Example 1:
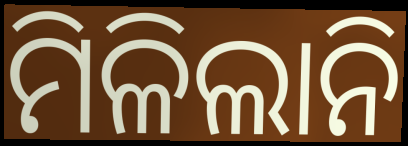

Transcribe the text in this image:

ମିଳିଲାନି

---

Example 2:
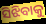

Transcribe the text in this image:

ସିଝିବାକୁ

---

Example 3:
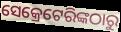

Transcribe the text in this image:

ସେକ୍ରେଟେରିଙ୍କଠାରୁ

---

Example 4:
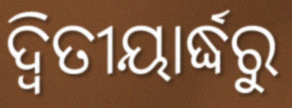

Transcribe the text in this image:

ଦ୍ଵିତୀୟାର୍ଦ୍ଧରୁ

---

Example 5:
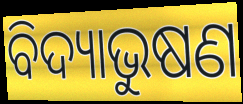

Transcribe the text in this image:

ବିଦ୍ୟାଭୁଷଣ